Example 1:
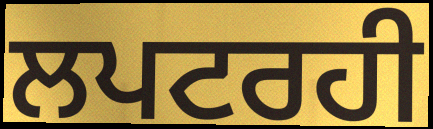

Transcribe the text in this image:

ਲਪਟਰਹੀ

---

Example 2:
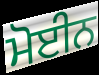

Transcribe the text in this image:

ਮੋਈਨ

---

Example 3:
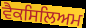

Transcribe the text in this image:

ਵੈਕਸਿਲਿਅਮ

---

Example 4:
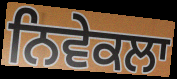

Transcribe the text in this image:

ਨਿਵੇਕਲਾ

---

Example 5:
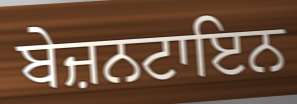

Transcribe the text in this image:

ਬੇਜ਼ਨਟਾਇਨ